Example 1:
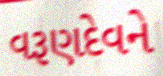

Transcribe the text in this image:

વરૂણદેવને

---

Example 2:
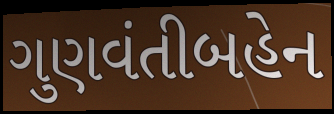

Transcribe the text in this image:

ગુણવંતીબહેન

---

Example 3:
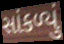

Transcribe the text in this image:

સાંકળ્યું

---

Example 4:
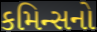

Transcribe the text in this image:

કમિન્સનો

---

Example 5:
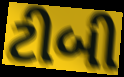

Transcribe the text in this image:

ટીબી